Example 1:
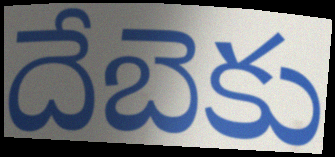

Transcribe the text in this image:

దేబెకు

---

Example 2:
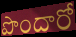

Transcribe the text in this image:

పొందారో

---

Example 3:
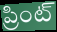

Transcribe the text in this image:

ప్రింట్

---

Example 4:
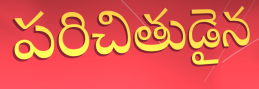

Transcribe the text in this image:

పరిచితుడైన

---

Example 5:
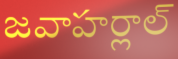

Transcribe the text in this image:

జవాహర్లాల్